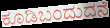
ಕೂಡಿಬಂದುದನೆ